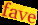
fave